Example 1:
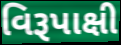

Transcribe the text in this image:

વિરૂપાક્ષી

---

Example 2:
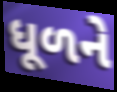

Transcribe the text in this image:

ધૂળને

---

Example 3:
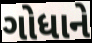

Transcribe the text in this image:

ગોધાને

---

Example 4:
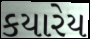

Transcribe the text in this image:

કયારેય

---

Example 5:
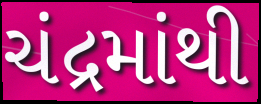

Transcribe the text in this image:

ચંદ્રમાંથી